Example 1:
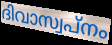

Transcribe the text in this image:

ദിവാസ്വപ്നം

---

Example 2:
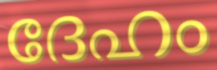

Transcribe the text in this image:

ദേഹം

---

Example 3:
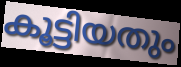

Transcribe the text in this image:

കൂട്ടിയതും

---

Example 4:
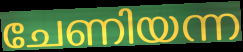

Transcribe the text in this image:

ചേണിയന്ന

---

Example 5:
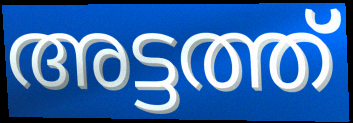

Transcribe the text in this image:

അട്ടത്ത്